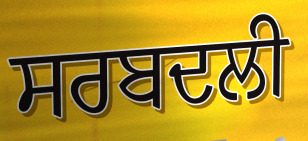
ਸਰਬਦਲੀ